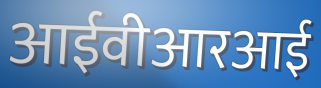
आईवीआरआई